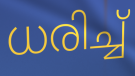
ധരിച്ച്